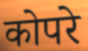
कोपरे